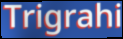
Trigrahi